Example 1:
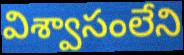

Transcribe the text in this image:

విశ్వాసంలేని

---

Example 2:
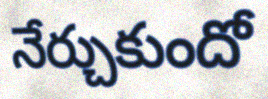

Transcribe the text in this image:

నేర్చుకుందో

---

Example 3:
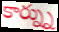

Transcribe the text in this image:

కార్న్ను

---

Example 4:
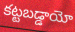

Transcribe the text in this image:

కట్టబడ్డాయో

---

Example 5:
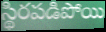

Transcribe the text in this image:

స్థిరపడిపోయి